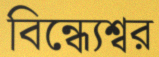
বিন্ধ্যেশ্বর